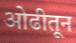
ओढीतून